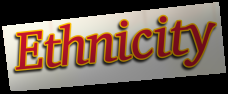
Ethnicity